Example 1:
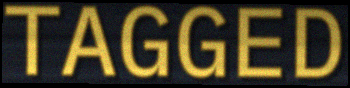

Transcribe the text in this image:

TAGGED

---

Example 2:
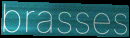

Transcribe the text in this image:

brasses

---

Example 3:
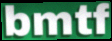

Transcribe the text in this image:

bmtf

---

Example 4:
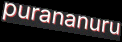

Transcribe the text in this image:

purananuru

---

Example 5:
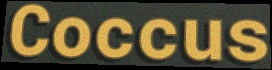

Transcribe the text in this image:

Coccus